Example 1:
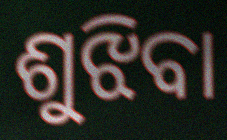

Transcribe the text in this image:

ଶୁଝିବା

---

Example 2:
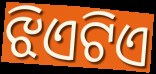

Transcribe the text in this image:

ଝିଏଟିଏ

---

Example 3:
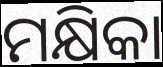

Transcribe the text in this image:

ମକ୍ଷିକା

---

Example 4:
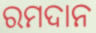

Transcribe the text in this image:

ରମଦାନ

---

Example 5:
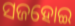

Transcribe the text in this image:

ସଜହୋଇ